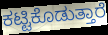
ಕಟ್ಟಿಕೊಡುತ್ತಾರೆ